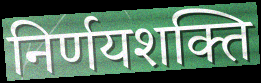
निर्णयशक्ति